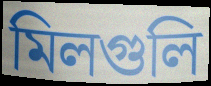
মিলগুলি